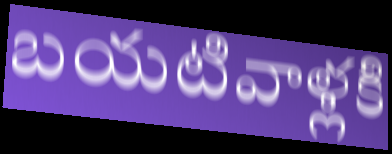
బయటివాళ్లకి